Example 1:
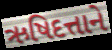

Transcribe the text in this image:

ઋષિદત્તાને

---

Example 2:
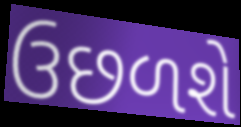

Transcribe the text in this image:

ઉછળશે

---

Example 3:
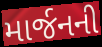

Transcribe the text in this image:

માર્જનની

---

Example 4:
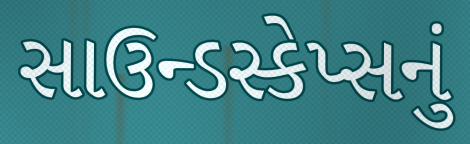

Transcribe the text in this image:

સાઉન્ડસ્કેપ્સનું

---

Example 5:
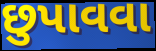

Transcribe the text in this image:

છુપાવવા